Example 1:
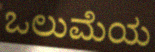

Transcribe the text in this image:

ಒಲುಮೆಯ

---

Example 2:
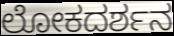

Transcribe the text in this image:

ಲೋಕದರ್ಶನ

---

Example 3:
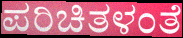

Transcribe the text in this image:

ಪರಿಚಿತಳಂತೆ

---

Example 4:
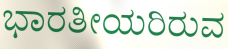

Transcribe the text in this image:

ಭಾರತೀಯರಿರುವ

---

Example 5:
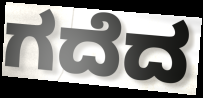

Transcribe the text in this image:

ಗದೆದ